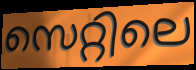
സെറ്റിലെ